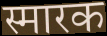
स्मारक